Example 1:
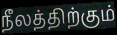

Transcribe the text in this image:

நீலத்திற்கும்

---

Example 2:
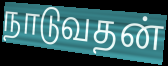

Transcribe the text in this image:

நாடுவதன்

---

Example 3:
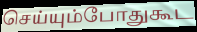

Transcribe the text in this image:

செய்யும்போதுகூட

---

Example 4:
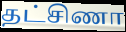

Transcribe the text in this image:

தட்சிணா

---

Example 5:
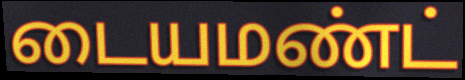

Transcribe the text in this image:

டையமண்ட்